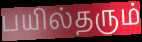
பயில்தரும்